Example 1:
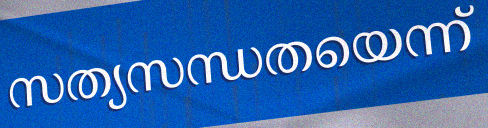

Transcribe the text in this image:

സത്യസന്ധതയെന്ന്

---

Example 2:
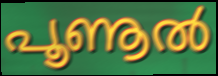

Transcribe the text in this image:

പൂണൂൽ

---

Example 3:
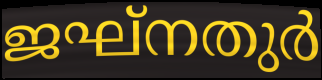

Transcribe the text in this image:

ജഘ്നതുർ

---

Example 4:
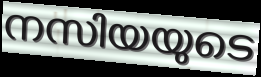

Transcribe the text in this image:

നസിയയുടെ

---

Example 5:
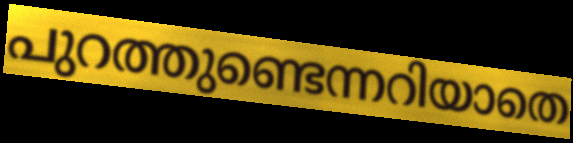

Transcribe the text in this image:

പുറത്തുണ്ടെന്നറിയാതെ